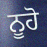
ਨੂਹੋ